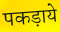
पकड़ाये